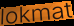
lokmat